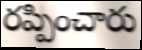
రప్పించారు